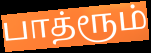
பாத்ரூம்